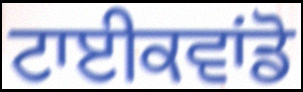
ਟਾਈਕਵਾਂਡੋ